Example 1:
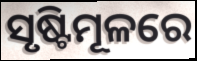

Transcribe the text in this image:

ସୃଷ୍ଟିମୂଳରେ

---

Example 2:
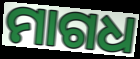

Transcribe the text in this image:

ମାଗଧ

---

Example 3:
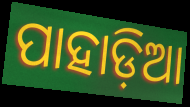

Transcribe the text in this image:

ପାହାଡ଼ିଆ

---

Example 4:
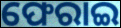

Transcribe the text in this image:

ଫେରାଇ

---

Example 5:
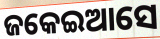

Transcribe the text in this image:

ଜକେଇଆସେ